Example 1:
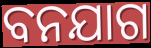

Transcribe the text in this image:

ବନଯାଗ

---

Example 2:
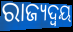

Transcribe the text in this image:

ରାଜ୍ୟଦ୍ୱୟ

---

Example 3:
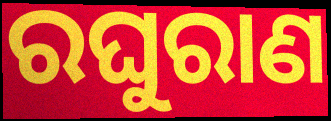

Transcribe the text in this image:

ରଘୁରାଣ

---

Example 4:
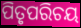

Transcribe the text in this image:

ପିତୃପରିଚୟ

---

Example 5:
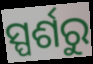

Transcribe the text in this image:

ସ୍ପର୍ଶରୁ